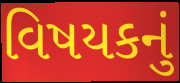
વિષયકનું